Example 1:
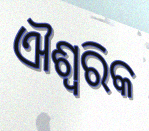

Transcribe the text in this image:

ଐଶ୍ୱରିକ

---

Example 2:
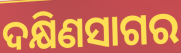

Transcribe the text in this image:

ଦକ୍ଷିଣସାଗର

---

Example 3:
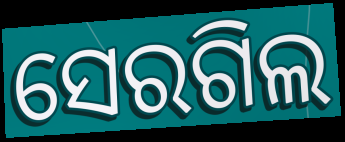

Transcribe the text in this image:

ସେରଗିଲ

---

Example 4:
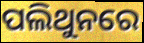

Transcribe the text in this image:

ପଲିଥୁନରେ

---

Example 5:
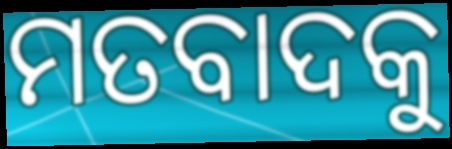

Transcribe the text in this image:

ମତବାଦକୁ